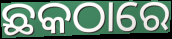
ଛକଠାରେ